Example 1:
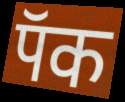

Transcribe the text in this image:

पॅक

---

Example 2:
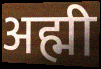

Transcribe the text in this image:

अह्मी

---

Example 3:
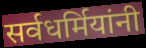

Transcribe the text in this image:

सर्वधर्मियांनी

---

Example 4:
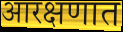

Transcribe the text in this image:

आरक्षणात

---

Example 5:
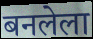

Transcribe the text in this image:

बनलेला